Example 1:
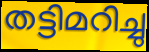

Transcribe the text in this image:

തട്ടിമറിച്ചു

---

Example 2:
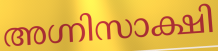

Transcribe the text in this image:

അഗ്നിസാക്ഷി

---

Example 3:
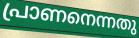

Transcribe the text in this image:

പ്രാണനെന്നതു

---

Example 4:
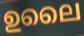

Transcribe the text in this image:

ഉലൈ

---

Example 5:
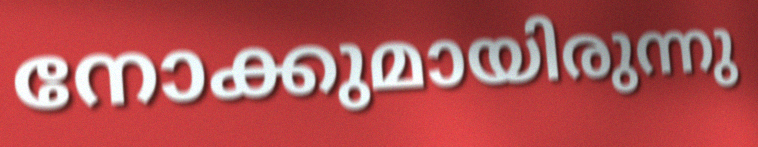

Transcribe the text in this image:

നോക്കുമായിരുന്നു